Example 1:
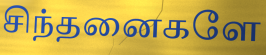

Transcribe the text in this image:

சிந்தனைகளே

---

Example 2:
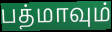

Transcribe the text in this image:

பத்மாவும்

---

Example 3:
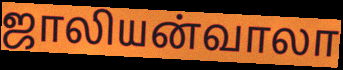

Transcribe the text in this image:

ஜாலியன்வாலா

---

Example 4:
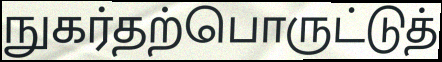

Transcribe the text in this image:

நுகர்தற்பொருட்டுத்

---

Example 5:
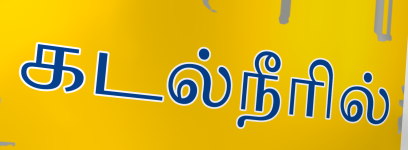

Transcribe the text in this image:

கடல்நீரில்